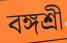
বঙ্গশ্রী